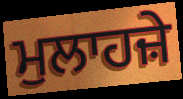
ਮੁਲਾਹਜ਼ੇ